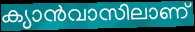
ക്യാൻവാസിലാണ്